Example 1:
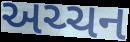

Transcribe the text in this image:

અચ્ચન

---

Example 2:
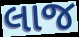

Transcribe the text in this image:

લાજ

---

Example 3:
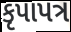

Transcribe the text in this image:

કૃપાપત્ર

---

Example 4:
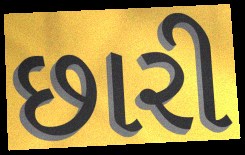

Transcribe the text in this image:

છારી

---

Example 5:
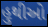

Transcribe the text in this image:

હુથીઓ